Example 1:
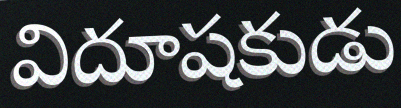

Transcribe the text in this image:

విదూషకుడు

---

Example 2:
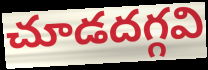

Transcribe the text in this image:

చూడదగ్గవి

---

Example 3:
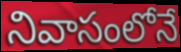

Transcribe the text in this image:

నివాసంలోనే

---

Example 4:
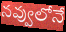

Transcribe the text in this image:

నవ్వులోనే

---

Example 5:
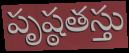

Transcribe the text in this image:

పృష్ఠతస్తు